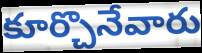
కూర్చొనేవారు